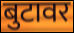
बुटावर